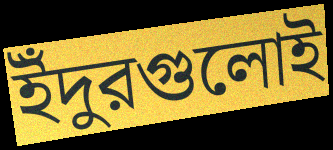
ইঁদুরগুলোই